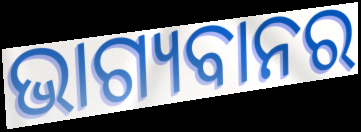
ଭାଗ୍ୟବାନର